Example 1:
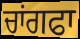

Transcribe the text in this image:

ਚਾਂਗਫਾ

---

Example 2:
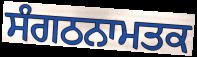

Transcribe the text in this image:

ਸੰਗਠਨਾਮਤਕ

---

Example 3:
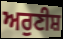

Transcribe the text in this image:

ਅਰੁਣੀਸ਼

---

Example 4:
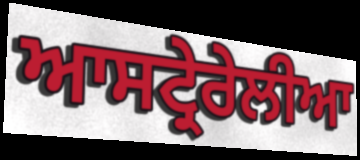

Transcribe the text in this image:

ਆਸਟ੍ਰੇਰੇਲੀਆ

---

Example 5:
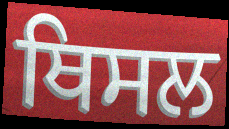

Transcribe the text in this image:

ਥਿਸਲ